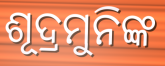
ଶୂଦ୍ରମୁନିଙ୍କ